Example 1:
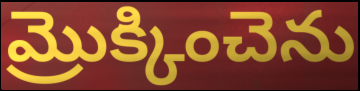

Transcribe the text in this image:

మ్రొక్కించెను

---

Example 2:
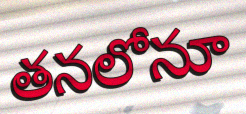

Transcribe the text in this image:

తనలోనూ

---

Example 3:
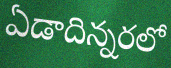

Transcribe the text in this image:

ఏడాదిన్నరలో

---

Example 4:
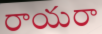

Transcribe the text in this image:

రాయరా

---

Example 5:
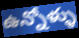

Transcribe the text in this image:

ఉన్నోళ్ళు